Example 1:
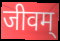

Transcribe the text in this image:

जीवम्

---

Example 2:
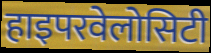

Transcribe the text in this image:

हाइपरवेलोसिटी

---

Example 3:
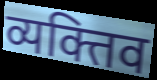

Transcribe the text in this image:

व्यक्तिव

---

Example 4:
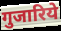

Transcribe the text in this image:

गुजारिये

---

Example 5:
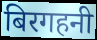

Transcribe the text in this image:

बिरगहनी